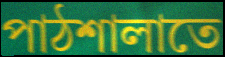
পাঠশালাতে